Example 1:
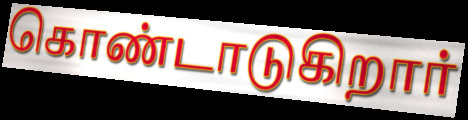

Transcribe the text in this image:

கொண்டாடுகிறார்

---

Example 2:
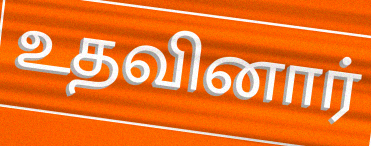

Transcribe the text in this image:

உதவினார்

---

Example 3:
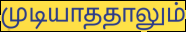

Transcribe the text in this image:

முடியாததாலும்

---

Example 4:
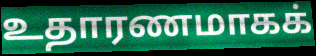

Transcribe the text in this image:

உதாரணமாகக்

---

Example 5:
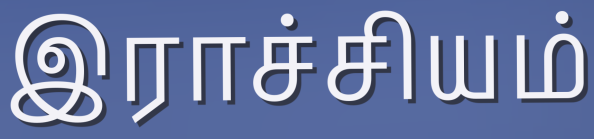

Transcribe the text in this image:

இராச்சியம்